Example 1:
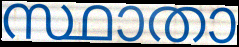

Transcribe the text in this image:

സ്ഥാതാ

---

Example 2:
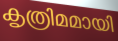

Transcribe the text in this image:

കൃത്രിമമായി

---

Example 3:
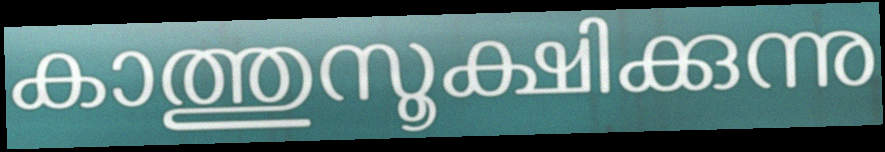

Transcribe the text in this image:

കാത്തുസൂക്ഷിക്കുന്നു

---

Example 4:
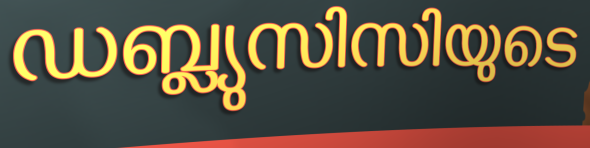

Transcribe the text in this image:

ഡബ്ല്യുസിസിയുടെ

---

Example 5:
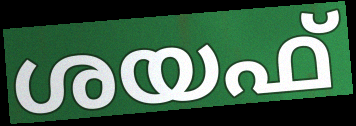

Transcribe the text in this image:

ശയഫ്